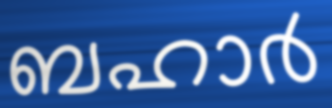
ബഹാർ